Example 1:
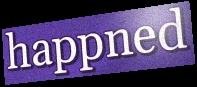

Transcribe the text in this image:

happned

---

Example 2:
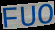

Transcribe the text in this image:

FUO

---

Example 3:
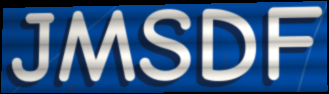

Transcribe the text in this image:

JMSDF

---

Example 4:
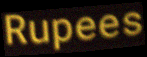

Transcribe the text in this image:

Rupees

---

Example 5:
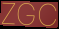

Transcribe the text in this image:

ZGC